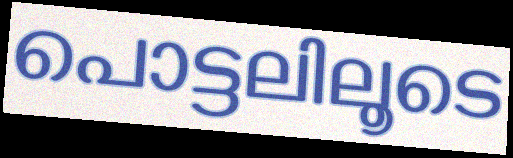
പൊട്ടലിലൂടെ